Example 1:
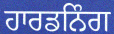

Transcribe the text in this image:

ਹਾਰਡਨਿੰਗ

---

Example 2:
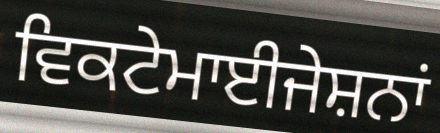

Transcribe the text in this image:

ਵਿਕਟੇਮਾਈਜੇਸ਼ਨਾਂ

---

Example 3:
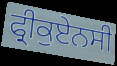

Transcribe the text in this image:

ਫ੍ਰੀਕੁਏਨਸੀ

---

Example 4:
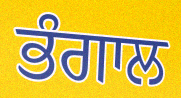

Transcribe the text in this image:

ਭੰਗਾਲ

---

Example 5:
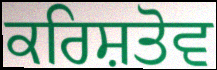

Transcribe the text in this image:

ਕਰਿਸ਼ਤੋਵ